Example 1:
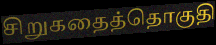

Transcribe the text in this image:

சிறுகதைத்தொகுதி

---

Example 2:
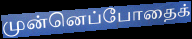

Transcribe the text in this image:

முன்னெப்போதைக்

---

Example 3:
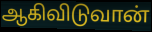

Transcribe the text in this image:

ஆகிவிடுவான்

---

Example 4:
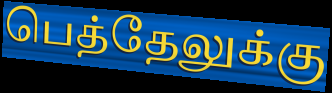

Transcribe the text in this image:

பெத்தேலுக்கு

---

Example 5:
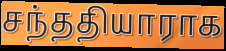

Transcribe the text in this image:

சந்ததியாராக